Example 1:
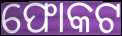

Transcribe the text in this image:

ଫୋକଟ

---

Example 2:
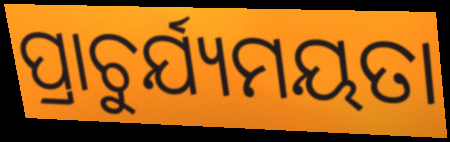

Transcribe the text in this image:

ପ୍ରାଚୁର୍ଯ୍ୟମୟତା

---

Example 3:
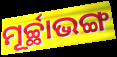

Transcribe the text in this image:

ମୂର୍ଚ୍ଛାଭଙ୍ଗ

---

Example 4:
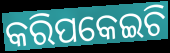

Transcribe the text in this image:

କରିପକେଇଚି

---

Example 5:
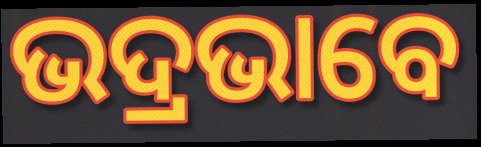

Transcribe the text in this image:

ଭଦ୍ରଭାବେ